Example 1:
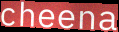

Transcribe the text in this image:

cheena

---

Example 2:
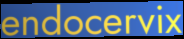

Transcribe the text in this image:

endocervix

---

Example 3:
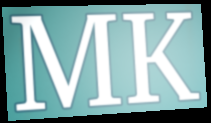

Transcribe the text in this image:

MK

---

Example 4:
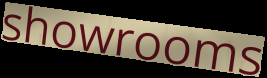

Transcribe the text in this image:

showrooms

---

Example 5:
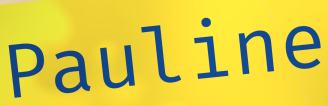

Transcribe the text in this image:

Pauline